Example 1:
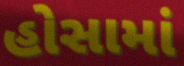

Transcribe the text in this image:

હોસામાં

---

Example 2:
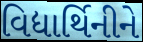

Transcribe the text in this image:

વિદ્યાર્થિનીને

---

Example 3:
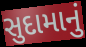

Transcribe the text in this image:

સુદામાનું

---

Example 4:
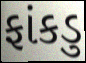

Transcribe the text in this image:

ફાંકડુ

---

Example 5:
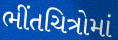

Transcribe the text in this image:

ભીંતચિત્રોમાં